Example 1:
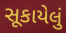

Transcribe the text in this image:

સૂકાયેલું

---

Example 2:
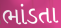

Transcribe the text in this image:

ભાંડતા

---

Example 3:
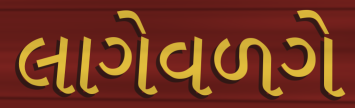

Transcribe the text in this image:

લાગેવળગે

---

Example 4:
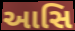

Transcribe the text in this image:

આસિ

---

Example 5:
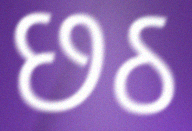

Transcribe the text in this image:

છઠ